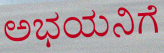
ಅಭಯನಿಗೆ